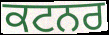
ਕਟਨਰ